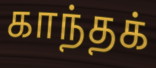
காந்தக்